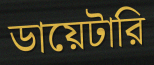
ডায়েটারি